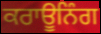
ਕਰਾਊਨਿੰਗ